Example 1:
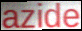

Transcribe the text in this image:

azide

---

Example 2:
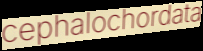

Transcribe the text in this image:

cephalochordata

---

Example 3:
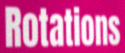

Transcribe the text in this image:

Rotations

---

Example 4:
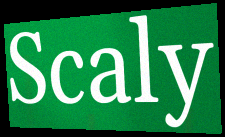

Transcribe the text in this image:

Scaly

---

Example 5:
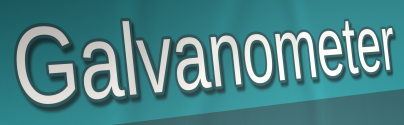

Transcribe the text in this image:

Galvanometer